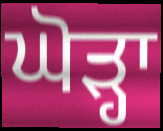
ਘੋੜ੍ਹਾ